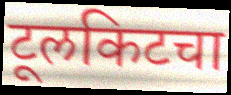
टूलकिटचा